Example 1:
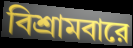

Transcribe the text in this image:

বিশ্রামবারে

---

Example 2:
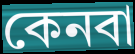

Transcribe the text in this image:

কেনবা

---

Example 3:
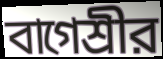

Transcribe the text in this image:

বাগেশ্রীর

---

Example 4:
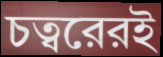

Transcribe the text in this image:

চত্বরেরই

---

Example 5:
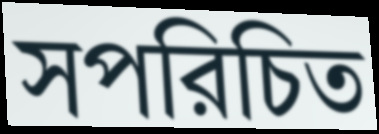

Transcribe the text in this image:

সপরিচিত